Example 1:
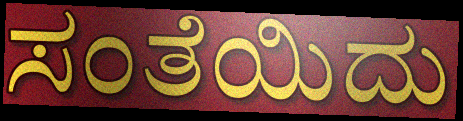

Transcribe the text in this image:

ಸಂತೆಯಿದು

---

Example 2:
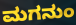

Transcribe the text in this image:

ಮಗನುಂ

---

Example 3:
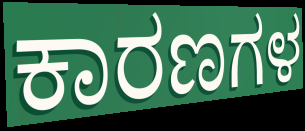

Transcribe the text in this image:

ಕಾರಣಗಳ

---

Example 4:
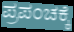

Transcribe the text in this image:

ಪ್ರಪಂಚಕ್ಕೆ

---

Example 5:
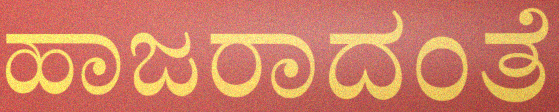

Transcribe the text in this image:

ಹಾಜರಾದಂತೆ